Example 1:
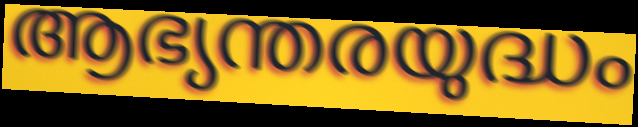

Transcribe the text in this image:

ആഭ്യന്തരയുദ്ധം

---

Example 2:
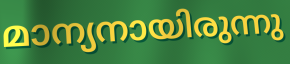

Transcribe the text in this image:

മാന്യനായിരുന്നു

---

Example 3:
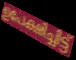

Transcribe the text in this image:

ഉപേക്ഷിച്ചിട്ട്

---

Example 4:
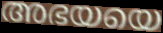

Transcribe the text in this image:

അഭയയെ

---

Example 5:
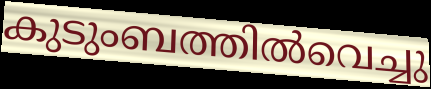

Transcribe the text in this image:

കുടുംബത്തിൽവെച്ചു